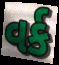
વર્ક